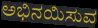
ಅಭಿನಯಿಸುವ